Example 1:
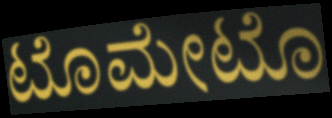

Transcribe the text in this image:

ಟೊಮೇಟೊ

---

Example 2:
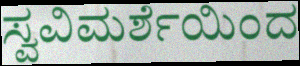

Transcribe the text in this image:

ಸ್ವವಿಮರ್ಶೆಯಿಂದ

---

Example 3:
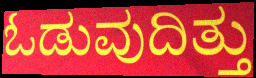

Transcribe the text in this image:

ಓಡುವುದಿತ್ತು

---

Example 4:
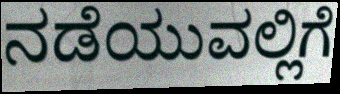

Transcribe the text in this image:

ನಡೆಯುವಲ್ಲಿಗೆ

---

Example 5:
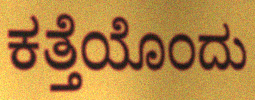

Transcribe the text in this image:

ಕತ್ತೆಯೊಂದು